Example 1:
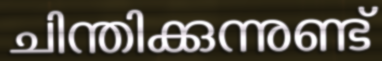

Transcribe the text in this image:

ചിന്തിക്കുന്നുണ്ട്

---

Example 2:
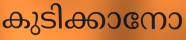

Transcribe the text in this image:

കുടിക്കാനോ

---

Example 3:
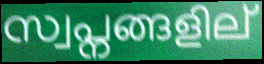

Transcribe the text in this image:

സ്വപ്നങ്ങളില്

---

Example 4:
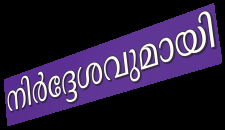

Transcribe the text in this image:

നിർദ്ദേശവുമായി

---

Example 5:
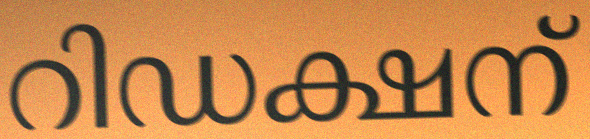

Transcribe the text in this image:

റിഡക്ഷന്